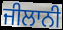
ਜੀਲਾਨੀ